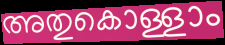
അതുകൊള്ളാം